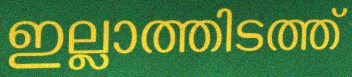
ഇല്ലാത്തിടത്ത്